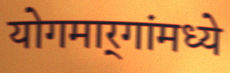
योगमार्गांमध्ये